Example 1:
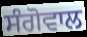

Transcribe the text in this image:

ਸੰਗੋਵਾਲ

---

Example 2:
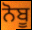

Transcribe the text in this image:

ਨੋਬੂ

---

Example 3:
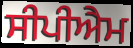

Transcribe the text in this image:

ਸੀਪੀਐਮ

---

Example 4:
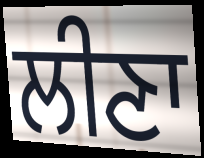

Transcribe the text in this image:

ਲੀਣਾ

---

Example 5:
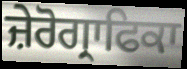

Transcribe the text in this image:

ਜ਼ੇਰੋਗ੍ਰਾਫਿਕਾ